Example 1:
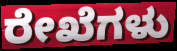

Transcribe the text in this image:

ರೇಖೆಗಳು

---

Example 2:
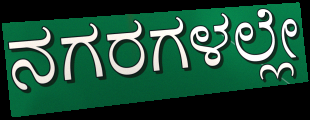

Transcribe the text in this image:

ನಗರಗಳಲ್ಲೇ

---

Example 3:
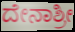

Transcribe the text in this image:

ದೇನಾಶ್ರೀ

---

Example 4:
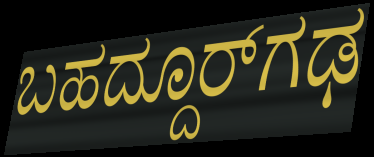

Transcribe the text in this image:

ಬಹದ್ದೂರ್‌ಗಢ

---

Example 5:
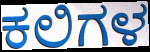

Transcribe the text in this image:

ಕಲಿಗಳ